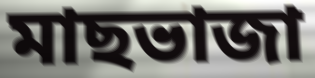
মাছভাজা